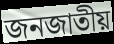
জনজাতীয়